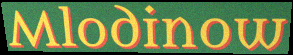
Mlodinow